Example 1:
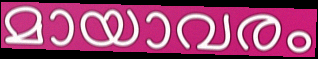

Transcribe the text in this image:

മായാവരം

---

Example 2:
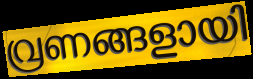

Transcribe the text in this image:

വ്രണങ്ങളായി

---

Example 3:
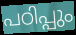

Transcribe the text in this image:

പഠിപ്പും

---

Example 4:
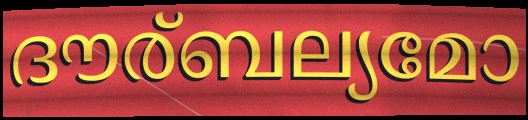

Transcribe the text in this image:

ദൗര്ബല്യമോ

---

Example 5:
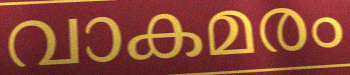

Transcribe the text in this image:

വാകമരം